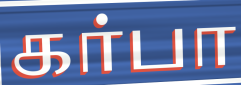
கர்பா